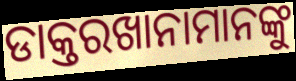
ଡାକ୍ତରଖାନାମାନଙ୍କୁ